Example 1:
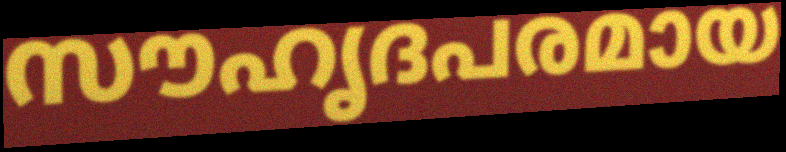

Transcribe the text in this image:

സൗഹൃദപരമായ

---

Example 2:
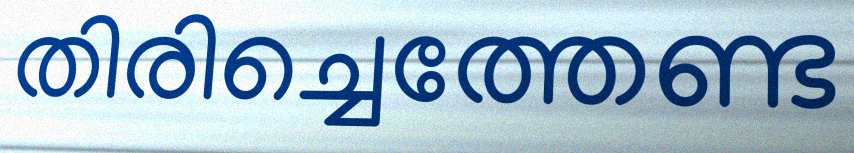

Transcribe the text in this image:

തിരിച്ചെത്തേണ്ട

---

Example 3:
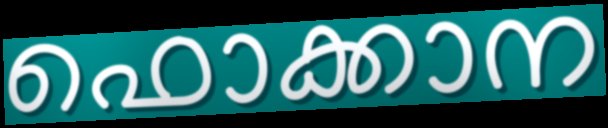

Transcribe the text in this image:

ഫൊക്കാന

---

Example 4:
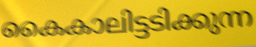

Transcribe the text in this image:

കൈകാലിട്ടടിക്കുന്ന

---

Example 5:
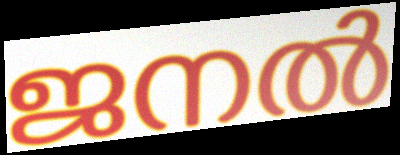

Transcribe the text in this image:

ജനൽ